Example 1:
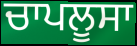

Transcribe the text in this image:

ਚਾਪਲੂਸਾ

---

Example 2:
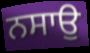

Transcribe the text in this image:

ਨਸਾਉ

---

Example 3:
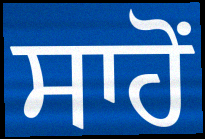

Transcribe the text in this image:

ਸਾਹੋਂ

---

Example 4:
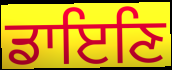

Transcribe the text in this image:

ਡਾਇਣਿ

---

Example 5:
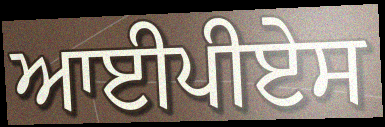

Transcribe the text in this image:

ਆਈਪੀਏਸ